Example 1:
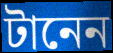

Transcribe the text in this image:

টানেন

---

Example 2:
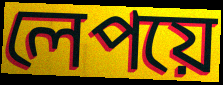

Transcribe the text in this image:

লেপয়ে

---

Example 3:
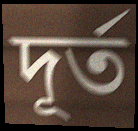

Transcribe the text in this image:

দূর্ত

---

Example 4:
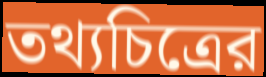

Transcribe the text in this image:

তথ্যচিত্রের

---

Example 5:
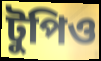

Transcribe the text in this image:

টুপিও